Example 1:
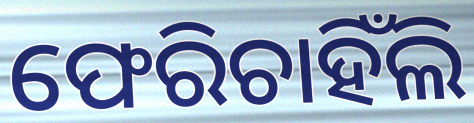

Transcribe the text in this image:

ଫେରିଚାହିଁଲି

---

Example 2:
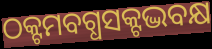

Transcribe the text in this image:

ଠକ୍ଟମବଗ୍ଧସକ୍ଟଦ୍ଭବକ୍ଷ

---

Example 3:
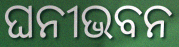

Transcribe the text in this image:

ଘନୀଭବନ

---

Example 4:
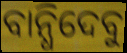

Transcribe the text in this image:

ବାନ୍ଧିଦେବୁ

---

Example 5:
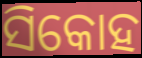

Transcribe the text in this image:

ସିକୋହ